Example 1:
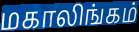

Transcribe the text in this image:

மகாலிங்கம்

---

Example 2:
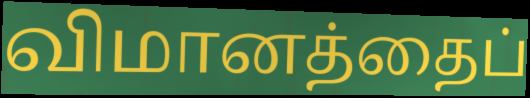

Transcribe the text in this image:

விமானத்தைப்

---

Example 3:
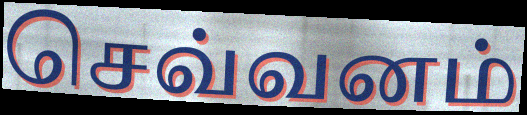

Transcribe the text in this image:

செவ்வனம்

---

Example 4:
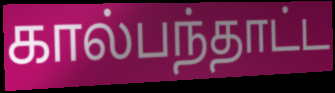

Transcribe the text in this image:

கால்பந்தாட்ட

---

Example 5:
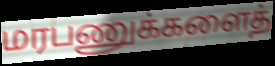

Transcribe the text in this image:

மரபணுக்களைத்